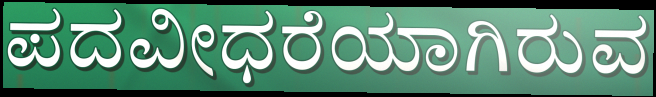
ಪದವೀಧರೆಯಾಗಿರುವ